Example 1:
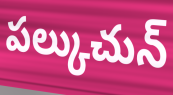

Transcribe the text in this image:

పల్కుచున్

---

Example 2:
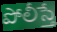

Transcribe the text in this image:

పోలీస్తే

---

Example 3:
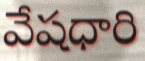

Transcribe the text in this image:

వేషధారి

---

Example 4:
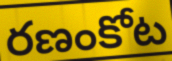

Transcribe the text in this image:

రణంకోట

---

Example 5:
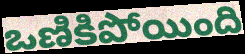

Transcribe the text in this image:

ఒణికిపోయింది